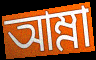
আম্না